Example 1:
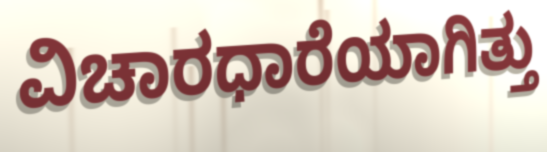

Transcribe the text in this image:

ವಿಚಾರಧಾರೆಯಾಗಿತ್ತು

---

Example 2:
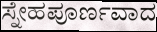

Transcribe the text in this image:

ಸ್ನೇಹಪೂರ್ಣವಾದ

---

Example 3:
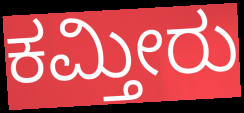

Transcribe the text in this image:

ಕಮ್ತೀರು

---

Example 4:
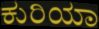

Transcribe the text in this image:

ಕುರಿಯಾ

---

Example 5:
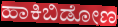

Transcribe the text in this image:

ಹಾಕಿಬಿಡೋಣ